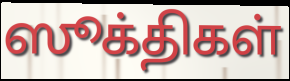
ஸூக்திகள்